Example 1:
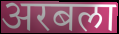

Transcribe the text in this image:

अरबला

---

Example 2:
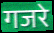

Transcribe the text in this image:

गजरे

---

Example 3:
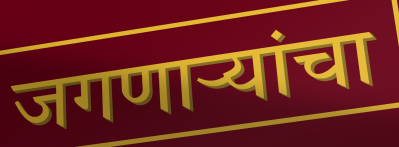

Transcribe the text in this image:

जगणाऱ्यांचा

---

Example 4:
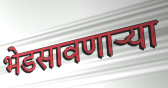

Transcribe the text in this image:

भेडसावणाऱ्या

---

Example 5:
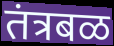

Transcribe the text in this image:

तंत्रबळ